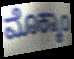
ಮೊಕ್ಕಾಂ